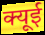
क्यूई